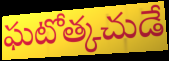
ఘటోత్కచుడే